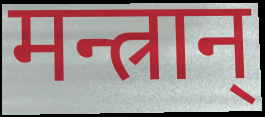
मन्त्रान्